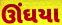
ઊંઘયા